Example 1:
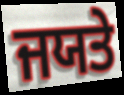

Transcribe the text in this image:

ਜਯਤੇ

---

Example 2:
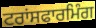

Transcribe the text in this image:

ਟਰਾਂਸਫਾਰਮਿੰਗ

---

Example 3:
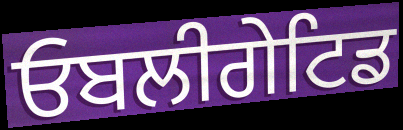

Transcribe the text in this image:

ਓਬਲੀਗੇਟਿਡ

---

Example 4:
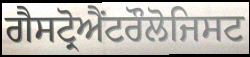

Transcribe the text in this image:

ਗੈਸਟ੍ਰੋਐਂਟਰੌਲੋਜਿਸਟ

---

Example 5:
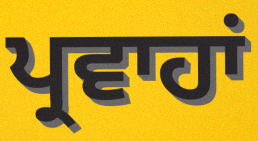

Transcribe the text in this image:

ਪ੍ਰਵਾਹਾਂ